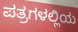
ಪತ್ರಗಳಲ್ಲಿಯ